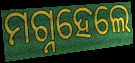
ମଗ୍ନହେଲେ